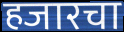
हजारचा